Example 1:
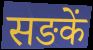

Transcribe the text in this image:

सङकें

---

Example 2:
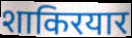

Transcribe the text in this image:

शाकिरयार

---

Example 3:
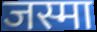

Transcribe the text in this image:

जस्मा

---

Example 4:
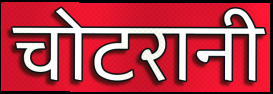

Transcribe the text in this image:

चोटरानी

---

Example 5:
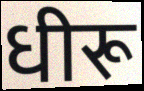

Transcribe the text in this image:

धीरू